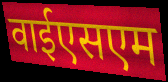
वाईएसएम